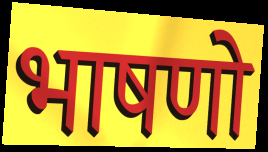
भाषणो